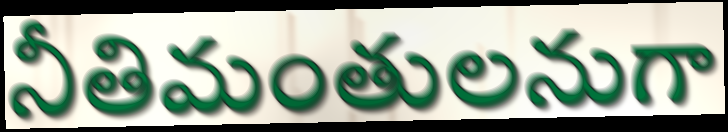
నీతిమంతులనుగా